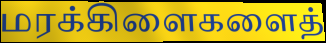
மரக்கிளைகளைத்